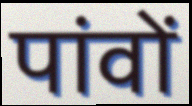
पांवों